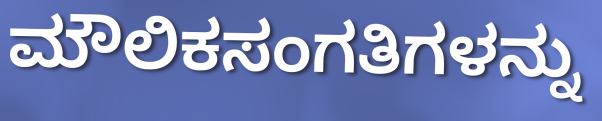
ಮೌಲಿಕಸಂಗತಿಗಳನ್ನು